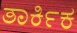
ತಾರ್ಕಿಕ